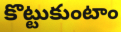
కొట్టుకుంటాం